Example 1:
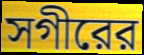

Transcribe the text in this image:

সগীরের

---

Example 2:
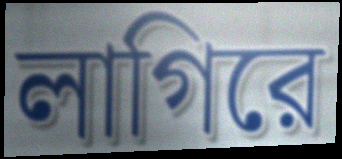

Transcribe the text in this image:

লাগিরে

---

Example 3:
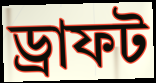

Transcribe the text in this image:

ড্রাফট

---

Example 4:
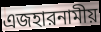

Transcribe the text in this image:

এজহারনামীয়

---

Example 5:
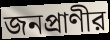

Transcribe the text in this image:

জনপ্রাণীর